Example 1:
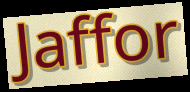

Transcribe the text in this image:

Jaffor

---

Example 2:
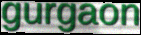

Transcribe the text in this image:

gurgaon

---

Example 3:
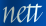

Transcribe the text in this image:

nett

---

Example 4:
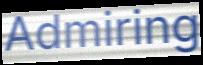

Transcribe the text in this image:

Admiring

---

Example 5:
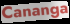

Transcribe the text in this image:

Cananga